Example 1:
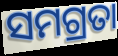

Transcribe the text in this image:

ସମଗ୍ରତା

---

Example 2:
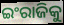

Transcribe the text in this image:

ଇଂରାଜିକୁ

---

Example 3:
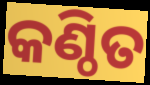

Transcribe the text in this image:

କଣ୍ଠିତ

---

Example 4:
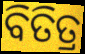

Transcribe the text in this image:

ବିତିତ୍ର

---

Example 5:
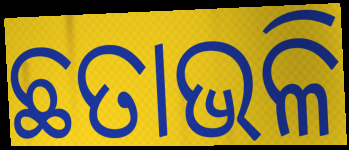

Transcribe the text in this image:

ଛତାଭଳି